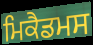
ਮਿਕੈਡਮਸ